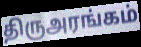
திருஅரங்கம்